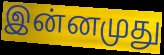
இன்னமுது